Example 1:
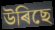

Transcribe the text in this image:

উৰিছে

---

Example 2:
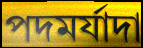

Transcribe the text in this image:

পদমৰ্যাদা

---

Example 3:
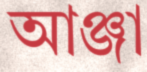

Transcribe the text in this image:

আঞ্জা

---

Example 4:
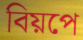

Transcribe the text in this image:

বিয়পে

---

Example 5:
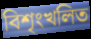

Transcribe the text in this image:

বিশৃংখলিত